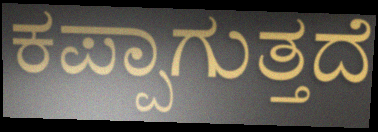
ಕಪ್ಪಾಗುತ್ತದೆ